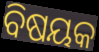
ବିଷୟକ